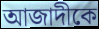
আজাদীকে